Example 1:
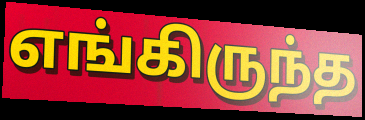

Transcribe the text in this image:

எங்கிருந்த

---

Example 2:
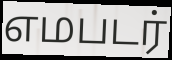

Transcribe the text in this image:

எமபடர்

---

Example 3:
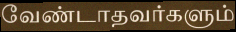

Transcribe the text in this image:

வேண்டாதவர்களும்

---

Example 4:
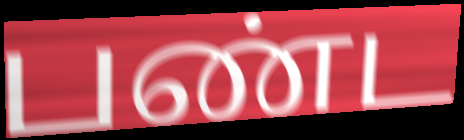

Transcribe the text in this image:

பண்ட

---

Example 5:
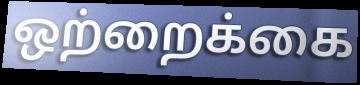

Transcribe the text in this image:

ஒற்றைக்கை